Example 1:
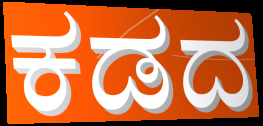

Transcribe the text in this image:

ಕಡದ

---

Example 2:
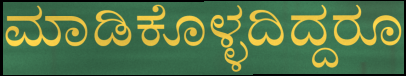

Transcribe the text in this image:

ಮಾಡಿಕೊಳ್ಳದಿದ್ದರೂ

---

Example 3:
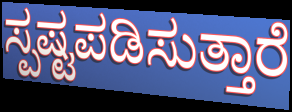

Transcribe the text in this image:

ಸ್ಪಷ್ಟಪಡಿಸುತ್ತಾರೆ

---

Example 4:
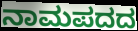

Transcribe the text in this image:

ನಾಮಪದದ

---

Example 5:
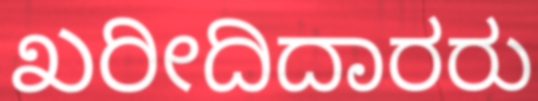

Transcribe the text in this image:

ಖರೀದಿದಾರರು